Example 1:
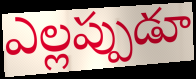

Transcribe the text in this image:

ఎల్లప్పుడూ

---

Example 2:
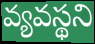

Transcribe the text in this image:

వ్యవస్థని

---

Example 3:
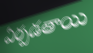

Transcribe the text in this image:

ఏర్పడతాయి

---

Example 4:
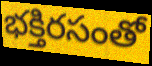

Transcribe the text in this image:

భక్తిరసంతో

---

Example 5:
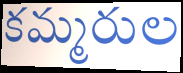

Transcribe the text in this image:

కమ్మరుల